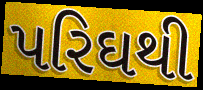
પરિઘથી